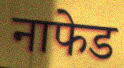
नाफेड